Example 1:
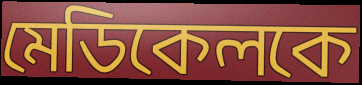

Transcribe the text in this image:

মেডিকেলকে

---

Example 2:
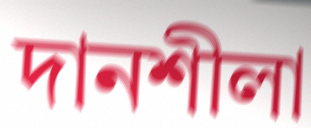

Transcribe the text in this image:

দানশীলা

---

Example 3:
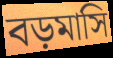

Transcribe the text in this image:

বড়মাসি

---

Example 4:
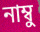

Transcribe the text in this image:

নাম্বু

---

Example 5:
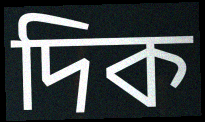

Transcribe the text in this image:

দিক